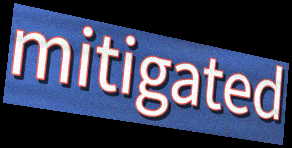
mitigated